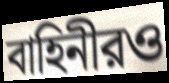
বাহিনীরও